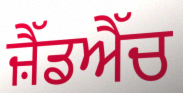
ਜ਼ੈੱਡਐੱਚ